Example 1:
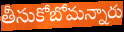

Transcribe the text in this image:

తీసుకోబోమన్నారు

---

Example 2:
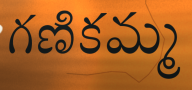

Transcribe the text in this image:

గణికమ్మ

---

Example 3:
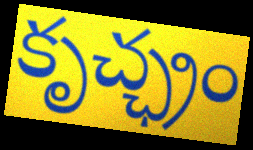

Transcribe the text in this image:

కృచ్ఛ్రం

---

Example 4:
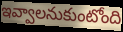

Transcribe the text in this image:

ఇవ్వాలనుకుంటోంది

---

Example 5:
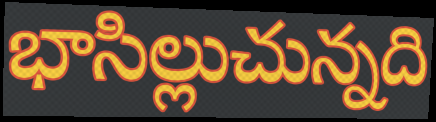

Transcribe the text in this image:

భాసిల్లుచున్నది